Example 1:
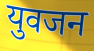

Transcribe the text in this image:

युवजन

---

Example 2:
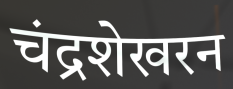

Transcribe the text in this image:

चंद्रशेखरन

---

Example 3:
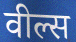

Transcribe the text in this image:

वील्स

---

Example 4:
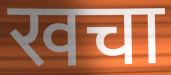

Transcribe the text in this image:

खचा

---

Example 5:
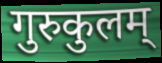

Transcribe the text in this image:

गुरुकुलम्